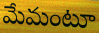
మేమంటూ